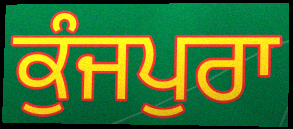
ਕੁੰਜਪੁਰਾ